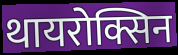
थायरोक्सिन